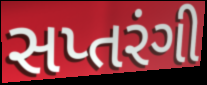
સપ્તરંગી